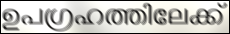
ഉപഗ്രഹത്തിലേക്ക്